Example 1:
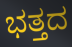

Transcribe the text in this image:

ಭತ್ತದ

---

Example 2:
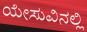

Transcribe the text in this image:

ಯೇಸುವಿನಲ್ಲಿ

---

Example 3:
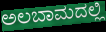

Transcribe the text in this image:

ಅಲಬಾಮದಲ್ಲಿ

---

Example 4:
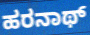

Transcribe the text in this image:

ಹರನಾಥ್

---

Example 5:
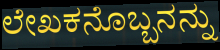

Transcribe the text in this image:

ಲೇಖಕನೊಬ್ಬನನ್ನು